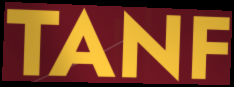
TANF